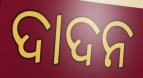
ଦାଦନ